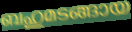
ബഹുമടങ്ങായ